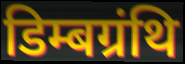
डिम्बग्रंथि